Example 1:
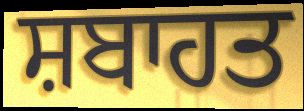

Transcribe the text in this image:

ਸ਼ਬਾਹਤ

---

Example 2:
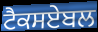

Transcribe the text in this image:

ਟੈਕਸਏਬਲ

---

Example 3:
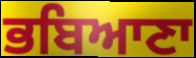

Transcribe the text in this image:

ਭਬਿਆਣਾ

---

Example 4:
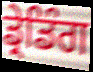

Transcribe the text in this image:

ਡ੍ਰੇਡਿੰਗ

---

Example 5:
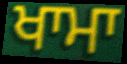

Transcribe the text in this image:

ਖਾਮਾ